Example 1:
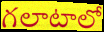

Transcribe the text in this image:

గలాటాలో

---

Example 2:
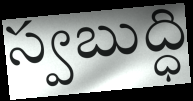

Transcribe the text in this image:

స్వబుద్ధి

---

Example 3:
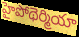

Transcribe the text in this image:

హైపోథెర్మియా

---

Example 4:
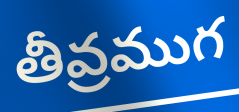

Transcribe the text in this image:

తీవ్రముగ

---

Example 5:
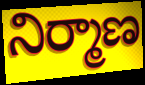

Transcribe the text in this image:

నిర్మాణ